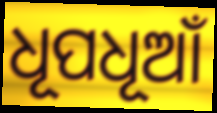
ଧୂପଧୂଆଁ